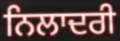
ਨਿਲਾਦਰੀ